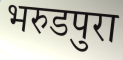
भरुडपुरा